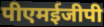
पीएमईजीपी